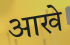
आखे